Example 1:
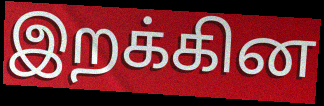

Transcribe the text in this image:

இறக்கின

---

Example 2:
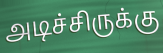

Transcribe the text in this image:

அடிச்சிருக்கு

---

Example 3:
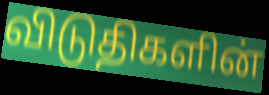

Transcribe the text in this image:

விடுதிகளின்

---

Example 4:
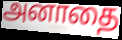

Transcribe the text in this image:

அனாதை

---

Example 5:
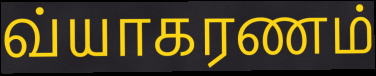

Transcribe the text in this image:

வ்யாகரணம்